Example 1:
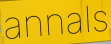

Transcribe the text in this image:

annals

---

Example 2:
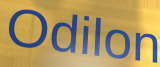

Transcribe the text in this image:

Odilon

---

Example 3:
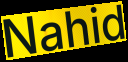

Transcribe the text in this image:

Nahid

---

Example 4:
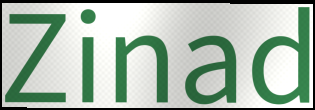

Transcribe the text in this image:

Zinad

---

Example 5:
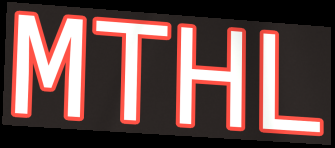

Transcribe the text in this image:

MTHL